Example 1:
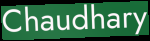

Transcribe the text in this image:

Chaudhary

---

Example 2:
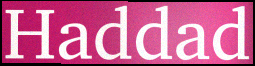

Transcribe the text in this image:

Haddad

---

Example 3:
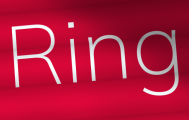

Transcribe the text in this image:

Ring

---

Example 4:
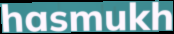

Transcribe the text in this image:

hasmukh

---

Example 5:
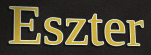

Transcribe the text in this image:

Eszter